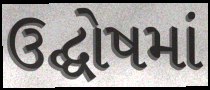
ઉદ્ઘોષમાં